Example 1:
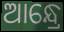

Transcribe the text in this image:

ଆନ୍ଧ୍ରେ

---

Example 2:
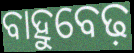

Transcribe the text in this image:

ବାହୁବେଢ଼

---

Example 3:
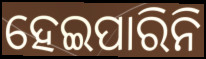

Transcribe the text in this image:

ହେଇପାରିନି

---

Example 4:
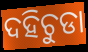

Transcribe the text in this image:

ଦହିଚୁଡା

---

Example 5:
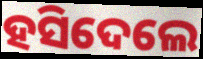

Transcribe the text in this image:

ହସିଦେଲେ